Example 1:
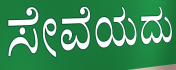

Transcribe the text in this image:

ಸೇವೆಯದು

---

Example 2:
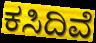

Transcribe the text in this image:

ಕಸಿದಿವೆ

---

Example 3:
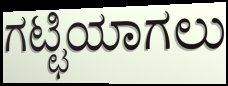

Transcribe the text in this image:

ಗಟ್ಟಿಯಾಗಲು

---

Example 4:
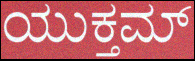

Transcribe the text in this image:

ಯುಕ್ತಮ್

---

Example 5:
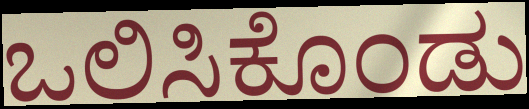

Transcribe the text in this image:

ಒಲಿಸಿಕೊಂಡು